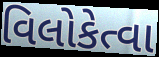
વિલોકેત્વા